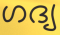
ഗദ്യ